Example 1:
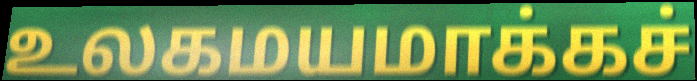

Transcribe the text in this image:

உலகமயமாக்கச்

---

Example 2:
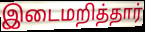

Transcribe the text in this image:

இடைமறித்தார்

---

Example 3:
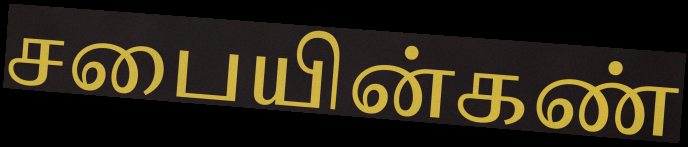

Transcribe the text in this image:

சபையின்கண்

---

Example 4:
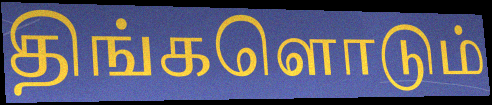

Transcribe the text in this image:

திங்களொடும்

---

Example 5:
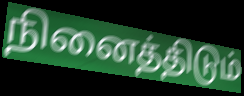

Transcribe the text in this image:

நினைத்திடும்